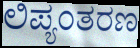
ಲಿಪ್ಯಂತರಣ